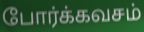
போர்க்கவசம்